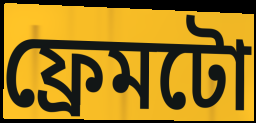
ফ্ৰেমটো